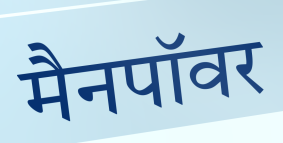
मैनपॉवर